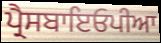
ਪ੍ਰੈਸਬਾਇਓਪੀਆ